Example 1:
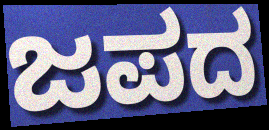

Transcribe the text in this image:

ಜಪದ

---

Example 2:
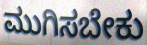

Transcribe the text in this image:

ಮುಗಿಸಬೇಕು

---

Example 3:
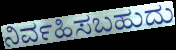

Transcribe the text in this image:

ನಿರ್ವಹಿಸಬಹುದು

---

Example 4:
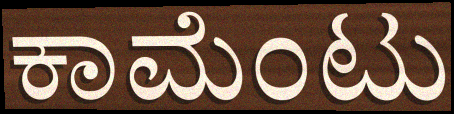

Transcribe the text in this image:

ಕಾಮೆಂಟು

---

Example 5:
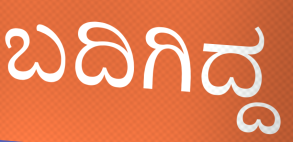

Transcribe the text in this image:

ಬದಿಗಿದ್ದ